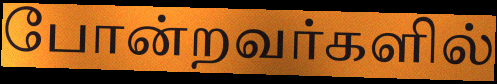
போன்றவர்களில்